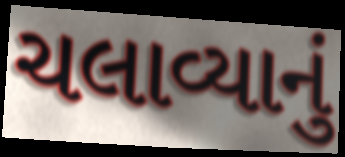
ચલાવ્યાનું